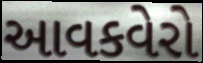
આવકવેરો